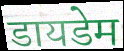
डायडेम